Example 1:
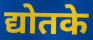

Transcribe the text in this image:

द्योतके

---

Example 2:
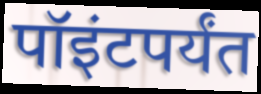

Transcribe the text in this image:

पॉइंटपर्यंत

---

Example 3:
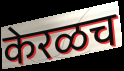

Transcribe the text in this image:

केरळच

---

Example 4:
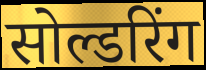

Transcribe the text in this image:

सोल्डरिंग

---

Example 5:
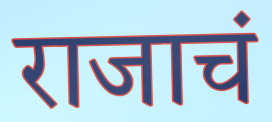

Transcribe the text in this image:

राजाचं